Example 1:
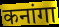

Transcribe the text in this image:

कनांगा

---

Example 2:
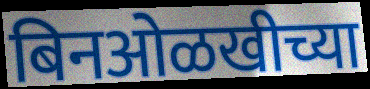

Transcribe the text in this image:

बिनओळखीच्या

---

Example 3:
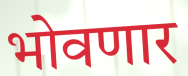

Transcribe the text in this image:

भोवणार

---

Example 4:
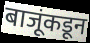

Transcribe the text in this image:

बाजूंकडून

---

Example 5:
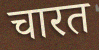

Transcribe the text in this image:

चारत